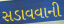
સડાવવાની